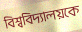
বিশ্ববিদ্যালয়কে